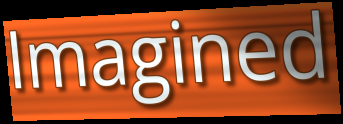
Imagined